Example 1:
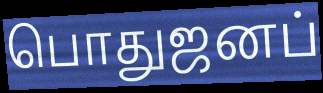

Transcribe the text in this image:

பொதுஜனப்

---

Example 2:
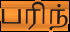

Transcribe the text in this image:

பரிந்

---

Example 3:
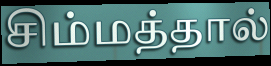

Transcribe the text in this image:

சிம்மத்தால்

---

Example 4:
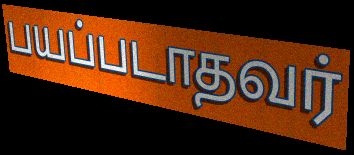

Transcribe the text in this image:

பயப்படாதவர்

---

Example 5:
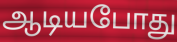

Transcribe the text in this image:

ஆடியபோது